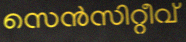
സെൻസിറ്റീവ്